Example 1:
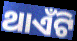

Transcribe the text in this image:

ଥାଏଁଟି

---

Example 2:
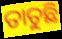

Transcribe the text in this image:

ତାତୁଛି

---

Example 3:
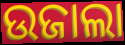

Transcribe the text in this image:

ଉଜାଲା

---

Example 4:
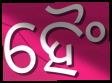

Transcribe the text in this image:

ହୈଂ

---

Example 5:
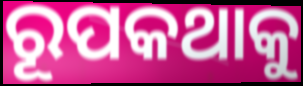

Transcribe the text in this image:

ରୂପକଥାକୁ